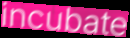
incubate